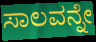
ಸಾಲವನ್ನೇ